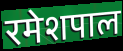
रमेशपाल